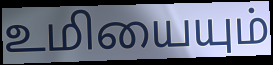
உமியையும்